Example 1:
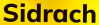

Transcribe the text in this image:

Sidrach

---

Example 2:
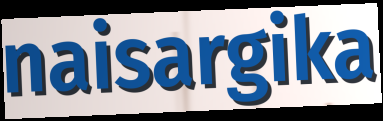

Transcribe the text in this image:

naisargika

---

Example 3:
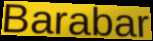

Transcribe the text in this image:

Barabar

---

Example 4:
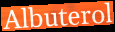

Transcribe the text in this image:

Albuterol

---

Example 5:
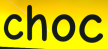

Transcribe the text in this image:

choc